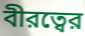
বীরত্বের